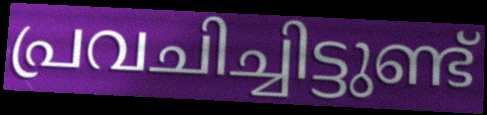
പ്രവചിച്ചിട്ടുണ്ട്